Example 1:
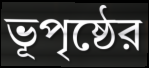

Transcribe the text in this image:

ভূপৃষ্ঠের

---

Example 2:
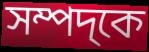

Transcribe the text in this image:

সম্পদ্‌কে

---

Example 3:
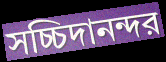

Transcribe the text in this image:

সচ্চিদানন্দর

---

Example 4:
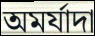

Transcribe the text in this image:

অমর্যাদা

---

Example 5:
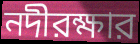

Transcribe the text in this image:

নদীরক্ষার